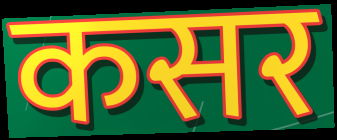
कसर